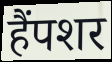
हैंपशर